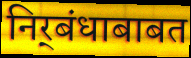
निर्बंधाबाबत